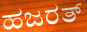
ಹಜರತ್